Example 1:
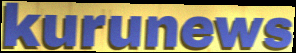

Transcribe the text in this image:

kurunews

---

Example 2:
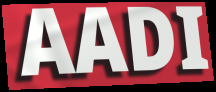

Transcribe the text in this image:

AADI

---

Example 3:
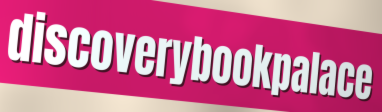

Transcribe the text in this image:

discoverybookpalace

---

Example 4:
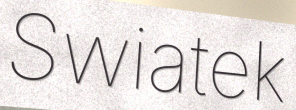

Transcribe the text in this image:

Swiatek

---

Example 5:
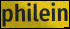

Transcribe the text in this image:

philein